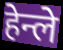
हेन्ले